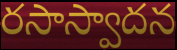
రసాస్వాదన